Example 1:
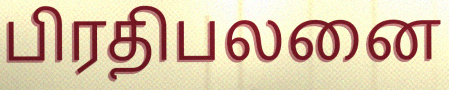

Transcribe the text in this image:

பிரதிபலனை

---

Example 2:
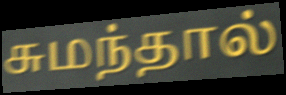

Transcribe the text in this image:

சுமந்தால்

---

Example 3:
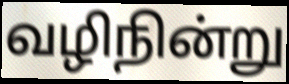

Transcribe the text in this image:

வழிநின்று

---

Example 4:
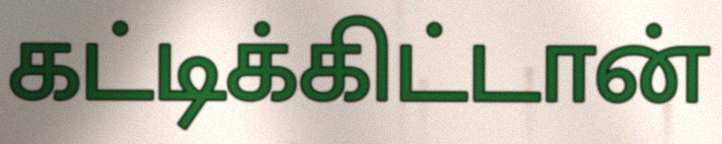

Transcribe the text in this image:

கட்டிக்கிட்டான்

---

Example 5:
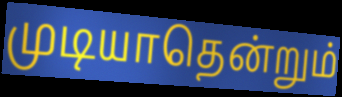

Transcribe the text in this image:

முடியாதென்றும்